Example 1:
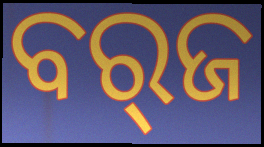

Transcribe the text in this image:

ବର୍‌ଜ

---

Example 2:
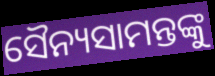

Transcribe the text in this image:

ସୈନ୍ୟସାମନ୍ତଙ୍କୁ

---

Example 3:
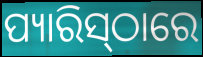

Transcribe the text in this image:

ପ୍ୟାରିସ୍‍ଠାରେ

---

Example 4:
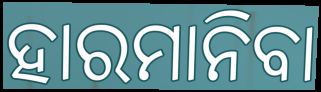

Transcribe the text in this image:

ହାରମାନିବା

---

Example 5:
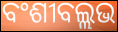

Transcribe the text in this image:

ବଂଶୀବଲ୍ଲଭ